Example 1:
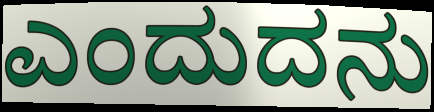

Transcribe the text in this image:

ಎಂದುದನು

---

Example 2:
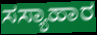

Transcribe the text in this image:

ಸಸ್ಯಾಹಾರ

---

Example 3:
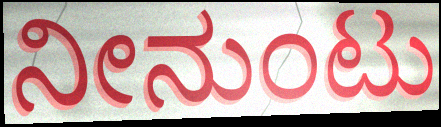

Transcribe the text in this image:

ನೀನುಂಟು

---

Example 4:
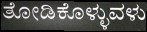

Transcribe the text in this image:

ತೋಡಿಕೊಳ್ಳುವಳು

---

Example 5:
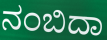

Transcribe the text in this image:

ನಂಬಿದಾ